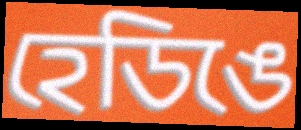
হেডিঙে